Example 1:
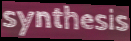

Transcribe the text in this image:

synthesis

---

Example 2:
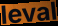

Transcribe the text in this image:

leval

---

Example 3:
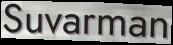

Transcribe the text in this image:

Suvarman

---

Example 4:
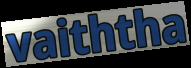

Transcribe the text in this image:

vaiththa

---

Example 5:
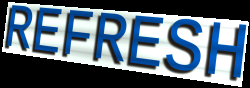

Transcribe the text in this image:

REFRESH